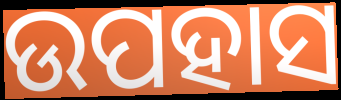
ଉପହାସ